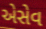
એસેવ